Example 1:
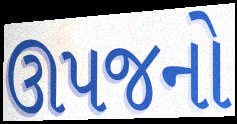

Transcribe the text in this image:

ઊપજનો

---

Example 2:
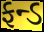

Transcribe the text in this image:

ફન્ડ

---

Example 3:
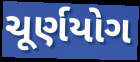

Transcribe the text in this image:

ચૂર્ણયોગ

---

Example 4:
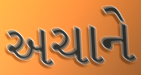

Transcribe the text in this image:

અચાને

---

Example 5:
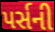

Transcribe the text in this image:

પર્સની